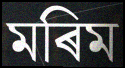
মৰিম